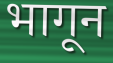
भागून